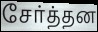
சேர்த்தன